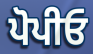
ਪੋਪੀਓ